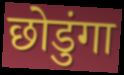
छोडुंगा